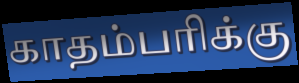
காதம்பரிக்கு